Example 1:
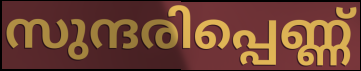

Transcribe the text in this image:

സുന്ദരിപ്പെണ്ണ്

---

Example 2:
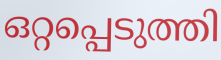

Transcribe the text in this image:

ഒറ്റപ്പെടുത്തി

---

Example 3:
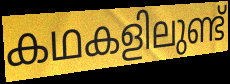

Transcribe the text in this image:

കഥകളിലുണ്ട്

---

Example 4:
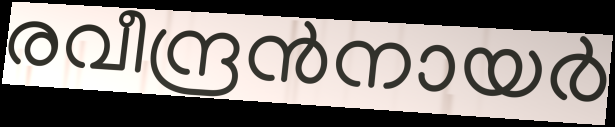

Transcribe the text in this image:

രവീന്ദ്രൻനായർ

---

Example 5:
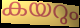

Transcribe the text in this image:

കയറും